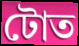
টোত